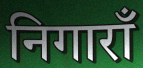
निगाराँ